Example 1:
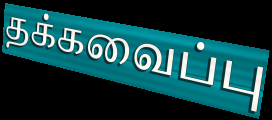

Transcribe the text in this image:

தக்கவைப்பு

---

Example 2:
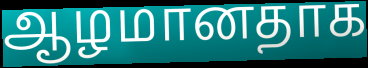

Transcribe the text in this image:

ஆழமானதாக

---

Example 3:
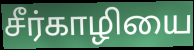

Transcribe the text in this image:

சீர்காழியை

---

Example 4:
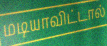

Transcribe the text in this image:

மடியாவிட்டால்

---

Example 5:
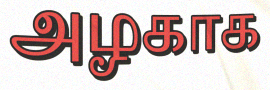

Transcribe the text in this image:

அழகாக